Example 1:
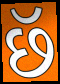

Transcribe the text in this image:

છૅ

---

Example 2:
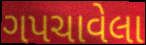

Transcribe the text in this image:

ગપચાવેલા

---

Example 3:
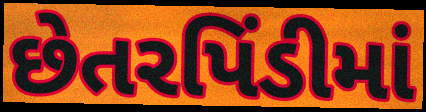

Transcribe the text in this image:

છેતરપિંડીમાં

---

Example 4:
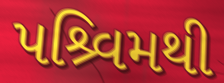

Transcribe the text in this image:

પશ્ર્વિમથી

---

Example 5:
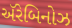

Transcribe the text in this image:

ઍરેબિનોઝ